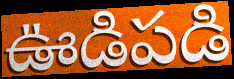
ఊడిపడి